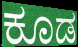
ಕೂಡ